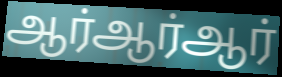
ஆர்ஆர்ஆர்